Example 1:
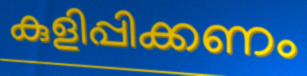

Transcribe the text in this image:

കുളിപ്പിക്കണം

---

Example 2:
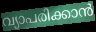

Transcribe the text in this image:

വ്യാപരിക്കാൻ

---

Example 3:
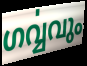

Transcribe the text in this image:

ഗൎവ്വവും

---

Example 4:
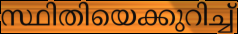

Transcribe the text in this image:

സ്ഥിതിയെക്കുറിച്ച്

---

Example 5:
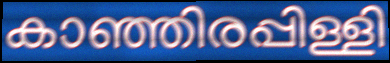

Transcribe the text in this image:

കാഞ്ഞിരപ്പിള്ളി